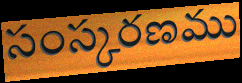
సంస్కరణము